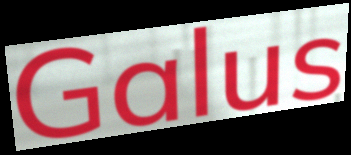
Galus